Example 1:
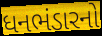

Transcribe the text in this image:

ધનભંડારનો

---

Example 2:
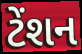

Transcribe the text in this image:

ટેંશન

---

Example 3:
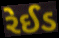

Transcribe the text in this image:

રેઈડ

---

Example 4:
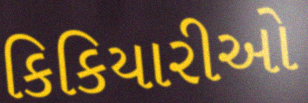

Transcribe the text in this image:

કિકિયારીઓ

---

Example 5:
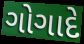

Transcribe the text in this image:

ગોગાદે